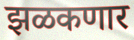
झळकणार